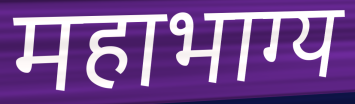
महाभाग्य